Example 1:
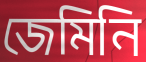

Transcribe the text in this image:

জেমিনি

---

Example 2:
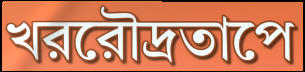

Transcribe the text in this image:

খররৌদ্রতাপে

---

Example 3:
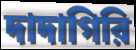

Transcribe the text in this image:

দাদাগিরি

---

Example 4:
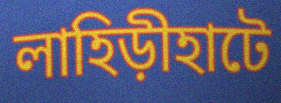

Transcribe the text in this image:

লাহিড়ীহাটে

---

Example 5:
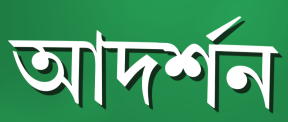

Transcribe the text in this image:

আদর্শন